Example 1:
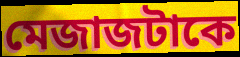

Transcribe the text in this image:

মেজাজটাকে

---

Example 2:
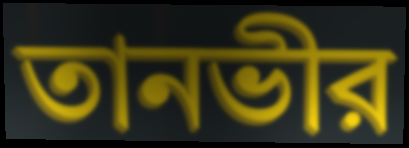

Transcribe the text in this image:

তানভীর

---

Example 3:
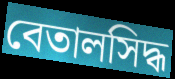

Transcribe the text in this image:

বেতালসিদ্ধ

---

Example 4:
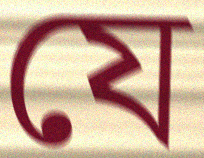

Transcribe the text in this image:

যে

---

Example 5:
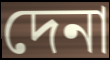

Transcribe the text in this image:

দেনা